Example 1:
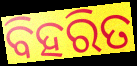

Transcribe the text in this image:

ବିହରିତ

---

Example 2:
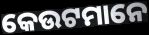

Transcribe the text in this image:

କେଉଟମାନେ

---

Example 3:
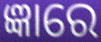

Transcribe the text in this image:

ଜ୍ଞାରେ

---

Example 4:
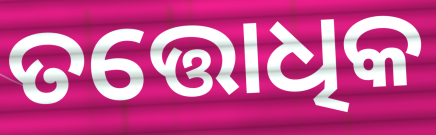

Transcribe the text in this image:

ତତ୍ତୋଧିକ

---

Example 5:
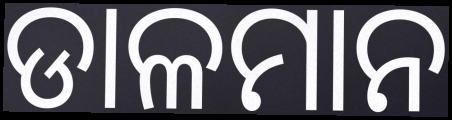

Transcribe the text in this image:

ଡାଳମାନ